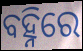
ବହ୍ନିରେ